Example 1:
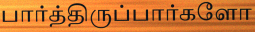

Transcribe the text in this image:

பார்த்திருப்பார்களோ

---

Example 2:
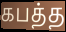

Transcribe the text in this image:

கபத்த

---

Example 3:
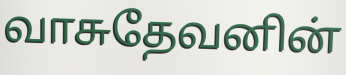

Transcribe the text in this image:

வாசுதேவனின்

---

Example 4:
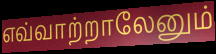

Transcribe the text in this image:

எவ்வாற்றாலேனும்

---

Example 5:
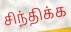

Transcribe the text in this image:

சிந்திக்க